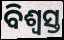
ବିଶ୍ଵସ୍ତ